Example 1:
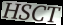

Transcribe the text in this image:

HSCT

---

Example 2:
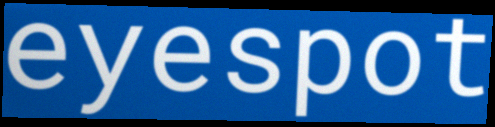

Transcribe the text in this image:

eyespot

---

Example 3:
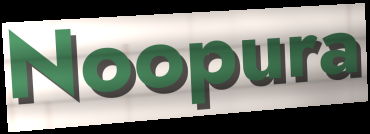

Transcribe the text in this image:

Noopura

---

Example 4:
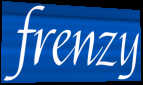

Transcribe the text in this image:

frenzy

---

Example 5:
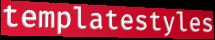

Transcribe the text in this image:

templatestyles